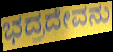
ಭದ್ರದೇವನು